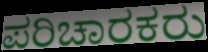
ಪರಿಚಾರಕರು